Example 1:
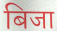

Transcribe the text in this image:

बिजा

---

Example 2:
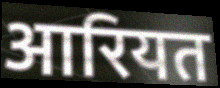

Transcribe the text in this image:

आरियत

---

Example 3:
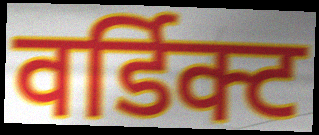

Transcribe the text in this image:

वर्डिक्ट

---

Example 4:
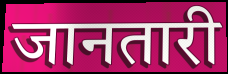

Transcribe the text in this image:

जानतारी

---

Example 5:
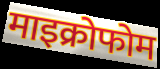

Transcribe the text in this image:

माइक्रोफोम